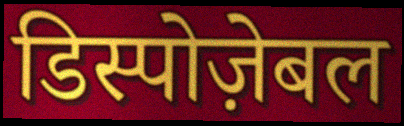
डिस्पोज़ेबल